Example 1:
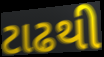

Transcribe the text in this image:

ટાઢથી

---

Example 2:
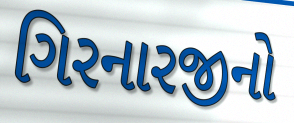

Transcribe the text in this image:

ગિરનારજીનો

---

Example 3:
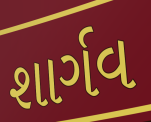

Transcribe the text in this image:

શાર્ગવ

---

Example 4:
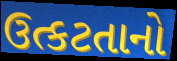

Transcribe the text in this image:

ઉત્કટતાનો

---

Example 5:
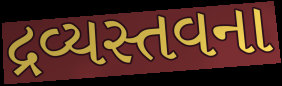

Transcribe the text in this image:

દ્રવ્યસ્તવના